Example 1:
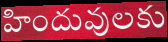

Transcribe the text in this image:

హిందువులకు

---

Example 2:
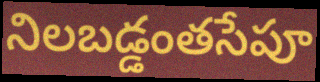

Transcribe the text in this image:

నిలబడ్డంతసేపూ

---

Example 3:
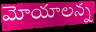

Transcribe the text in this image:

మోయాలన్న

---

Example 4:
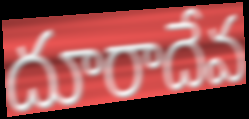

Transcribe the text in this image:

దూరాదేవ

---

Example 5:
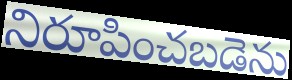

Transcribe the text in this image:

నిరూపించబడెను